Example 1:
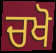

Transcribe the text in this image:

ਚਖੋ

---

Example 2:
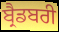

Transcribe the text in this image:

ਬ੍ਰੈਡਬਰੀ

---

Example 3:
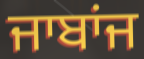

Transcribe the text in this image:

ਜਾਬਾਂਜ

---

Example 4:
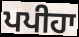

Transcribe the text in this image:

ਪਪੀਹਾ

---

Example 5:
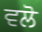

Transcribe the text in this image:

ਵਲੋ